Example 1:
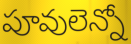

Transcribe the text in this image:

పూవులెన్నో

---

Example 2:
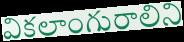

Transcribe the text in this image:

వికలాంగురాలిని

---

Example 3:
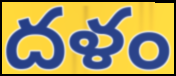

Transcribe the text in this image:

దళం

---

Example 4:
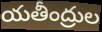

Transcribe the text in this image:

యతీంద్రుల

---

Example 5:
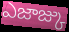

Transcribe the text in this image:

ఎజాజ్కు